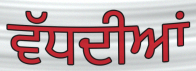
ਵੱਧਦੀਆਂ